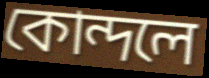
কোন্দলে